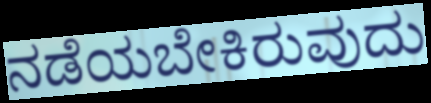
ನಡೆಯಬೇಕಿರುವುದು